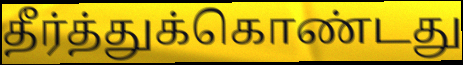
தீர்த்துக்கொண்டது